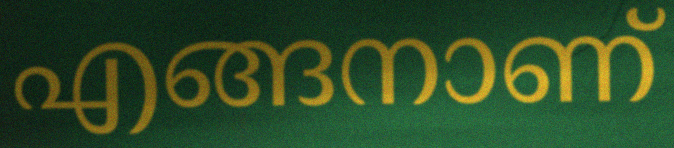
എങ്ങനാണ്